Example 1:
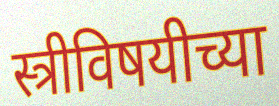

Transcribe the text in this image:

स्त्रीविषयीच्या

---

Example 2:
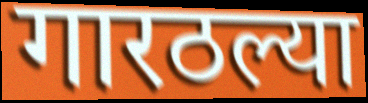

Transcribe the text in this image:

गारठल्या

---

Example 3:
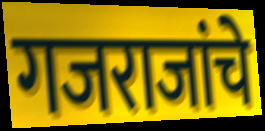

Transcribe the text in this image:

गजराजांचे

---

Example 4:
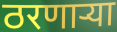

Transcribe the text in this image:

ठरणाऱ्या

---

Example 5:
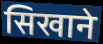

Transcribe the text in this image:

सिखाने